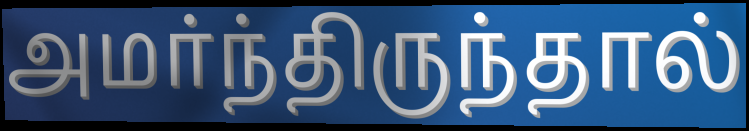
அமர்ந்திருந்தால்